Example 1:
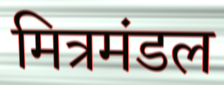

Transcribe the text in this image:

मित्रमंडल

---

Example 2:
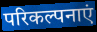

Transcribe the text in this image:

परिकल्पनाएं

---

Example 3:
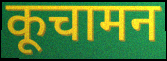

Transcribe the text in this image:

कूचामन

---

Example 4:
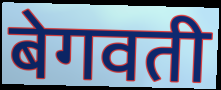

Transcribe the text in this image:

बेगवती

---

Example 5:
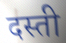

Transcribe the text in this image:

दस्ती